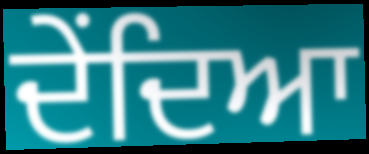
ਦੇਂਦਿਆ